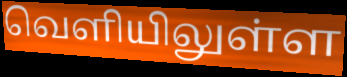
வெளியிலுள்ள